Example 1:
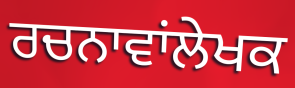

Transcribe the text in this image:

ਰਚਨਾਵਾਂਲੇਖਕ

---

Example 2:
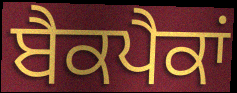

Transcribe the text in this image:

ਬੈਕਪੈਕਾਂ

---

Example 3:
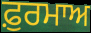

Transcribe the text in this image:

ਫ਼ੁਰਮਾਅ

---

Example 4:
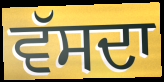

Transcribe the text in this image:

ਵੱਸਦਾ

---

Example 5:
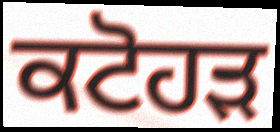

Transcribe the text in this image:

ਕਟੋਹੜ